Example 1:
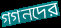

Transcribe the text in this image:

গগনদের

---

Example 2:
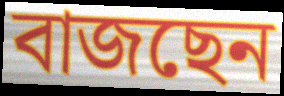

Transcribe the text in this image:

বাজছেন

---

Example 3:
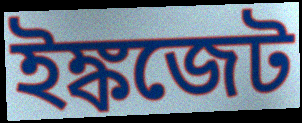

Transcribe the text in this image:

ইঙ্কজেট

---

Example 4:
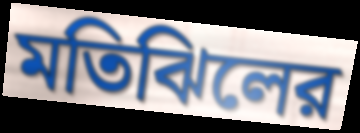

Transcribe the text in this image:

মতিঝিলের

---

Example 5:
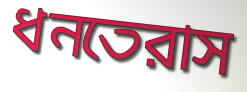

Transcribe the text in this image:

ধনতেরাস